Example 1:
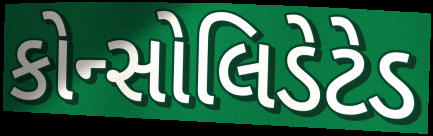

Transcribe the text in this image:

કોન્સોલિડેટેડ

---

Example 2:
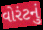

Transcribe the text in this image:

વોરંટનું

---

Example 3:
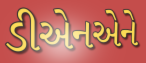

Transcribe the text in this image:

ડીએનએને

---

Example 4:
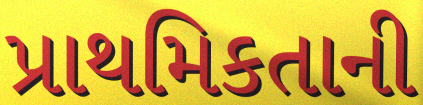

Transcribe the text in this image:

પ્રાથમિકતાની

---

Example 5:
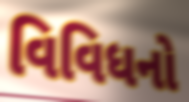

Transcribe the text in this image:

વિવિધનો